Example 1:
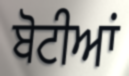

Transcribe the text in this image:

ਬੋਟੀਆਂ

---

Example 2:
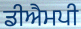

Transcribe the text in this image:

ਡੀਐਮਪੀ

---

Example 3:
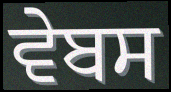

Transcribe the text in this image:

ਵੇਬਸ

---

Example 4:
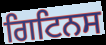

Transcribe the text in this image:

ਗਿਟਿਨਸ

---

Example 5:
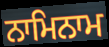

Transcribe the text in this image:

ਨਾਮਿਨਾਮ